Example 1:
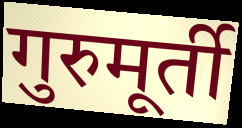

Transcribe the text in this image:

गुरुमूर्ती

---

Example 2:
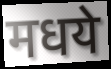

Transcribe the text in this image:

मधये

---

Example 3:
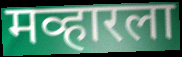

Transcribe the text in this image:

मव्हारला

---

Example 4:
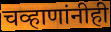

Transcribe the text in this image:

चव्हाणांनीही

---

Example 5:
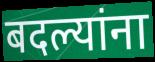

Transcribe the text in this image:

बदल्यांना